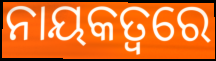
ନାୟକତ୍ବରେ